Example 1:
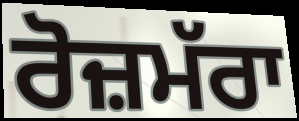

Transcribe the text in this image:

ਰੋਜ਼ਮੱਰਾ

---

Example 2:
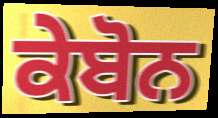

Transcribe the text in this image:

ਕੇਬੋਨ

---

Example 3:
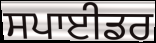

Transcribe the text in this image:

ਸਪਾਈਡਰ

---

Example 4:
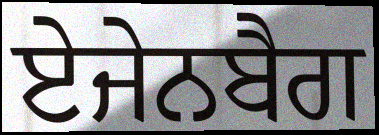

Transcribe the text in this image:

ਏਜੇਨਬੈਗ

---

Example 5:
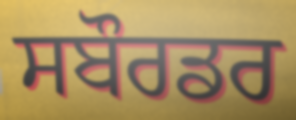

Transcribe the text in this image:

ਸਬੌਰਡਰ